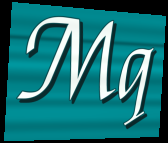
Mq